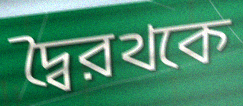
দ্বৈরথকে